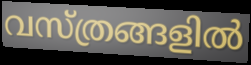
വസ്ത്രങ്ങളിൽ